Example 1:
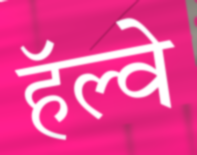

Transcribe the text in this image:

हॅल्वे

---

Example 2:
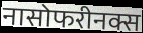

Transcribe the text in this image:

नासोफरीनक्स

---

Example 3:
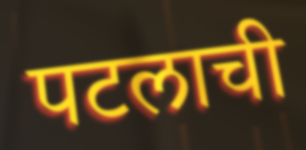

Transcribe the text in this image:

पटलाची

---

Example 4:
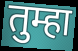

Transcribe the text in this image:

तुम्हा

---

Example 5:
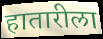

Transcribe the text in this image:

हातारीला